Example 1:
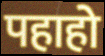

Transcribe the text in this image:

पहाहो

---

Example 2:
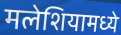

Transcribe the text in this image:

मलेशियामध्ये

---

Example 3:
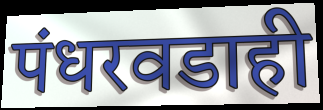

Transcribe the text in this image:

पंधरवडाही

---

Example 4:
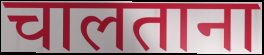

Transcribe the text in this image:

चालताना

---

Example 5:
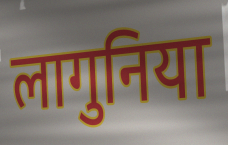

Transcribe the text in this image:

लागुनिया